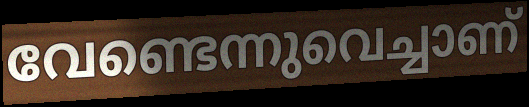
വേണ്ടെന്നുവെച്ചാണ്